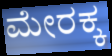
ಮೇರಕ್ಕ